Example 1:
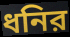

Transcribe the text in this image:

ধনির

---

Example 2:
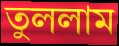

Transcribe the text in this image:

তুললাম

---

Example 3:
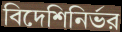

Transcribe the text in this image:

বিদেশিনির্ভর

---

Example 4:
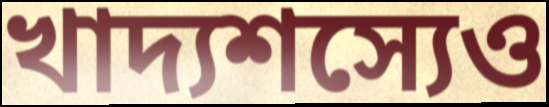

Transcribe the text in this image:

খাদ্যশস্যেও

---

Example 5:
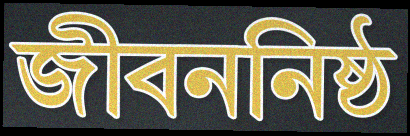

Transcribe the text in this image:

জীবননিষ্ঠ